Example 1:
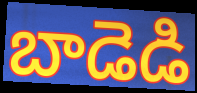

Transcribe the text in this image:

బాడెడి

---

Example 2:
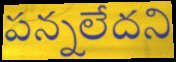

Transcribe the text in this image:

పన్నలేదని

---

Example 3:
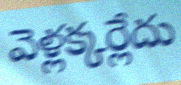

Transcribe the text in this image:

వెళ్లక్కర్లేదు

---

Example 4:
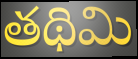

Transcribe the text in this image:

తథిమి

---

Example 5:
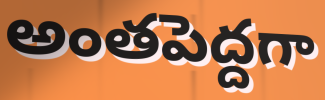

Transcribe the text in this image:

అంతపెద్దగా